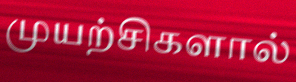
முயற்சிகளால்